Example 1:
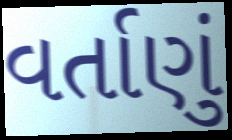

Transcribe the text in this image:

વર્તાણું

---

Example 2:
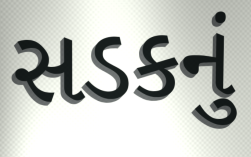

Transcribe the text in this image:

સડકનું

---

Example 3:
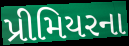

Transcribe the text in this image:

પ્રીમિયરના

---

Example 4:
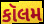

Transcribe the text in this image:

કૉલમ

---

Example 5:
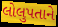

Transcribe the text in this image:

લોલુપતાને